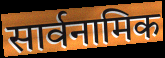
सार्वनामिक